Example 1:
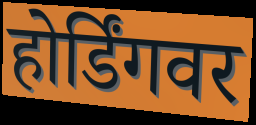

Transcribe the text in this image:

होर्डिंगवर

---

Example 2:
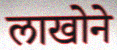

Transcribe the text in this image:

लाखोने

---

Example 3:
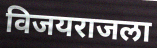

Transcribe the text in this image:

विजयराजला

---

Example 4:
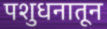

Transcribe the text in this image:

पशुधनातून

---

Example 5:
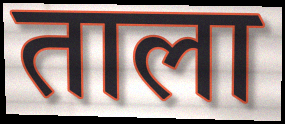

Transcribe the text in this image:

ताला